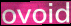
ovoid